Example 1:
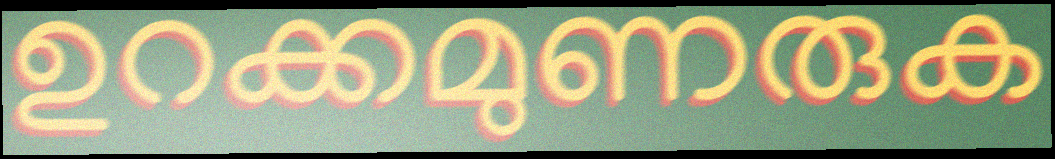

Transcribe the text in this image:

ഉറക്കമുണരുക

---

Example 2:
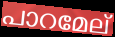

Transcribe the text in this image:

പാറമേല്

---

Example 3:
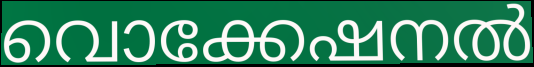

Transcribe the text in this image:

വൊക്കേഷനൽ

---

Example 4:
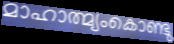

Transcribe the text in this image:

മാഹാത്മ്യംകൊണ്ടു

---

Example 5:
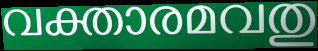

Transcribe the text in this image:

വക്താരമവതു